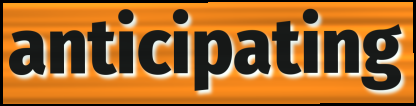
anticipating